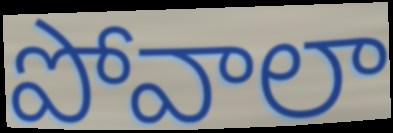
పోవాలా